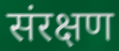
संरक्षण